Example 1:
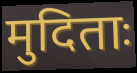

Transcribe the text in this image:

मुदिताः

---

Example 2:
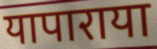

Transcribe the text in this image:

यापाराया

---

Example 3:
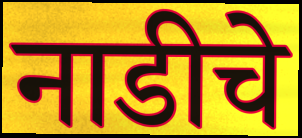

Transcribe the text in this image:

नाडीचे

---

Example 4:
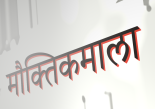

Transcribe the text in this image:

मौक्तिकमाला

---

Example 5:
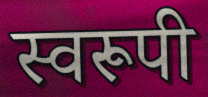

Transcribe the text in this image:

स्वरूपी